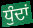
ਧੁੰਦਾਂ